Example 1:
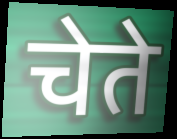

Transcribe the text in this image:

चेते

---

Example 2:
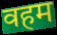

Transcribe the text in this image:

वहम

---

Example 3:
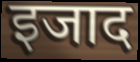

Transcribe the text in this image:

इजाद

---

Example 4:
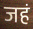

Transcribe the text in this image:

जहं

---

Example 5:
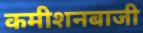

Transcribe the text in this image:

कमीशनबाजी